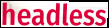
headless